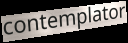
contemplator